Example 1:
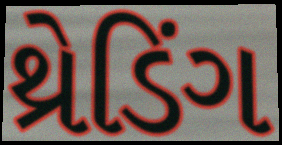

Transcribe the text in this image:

થ્રેડિંગ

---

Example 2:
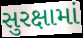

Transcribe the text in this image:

સુરક્ષામાં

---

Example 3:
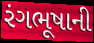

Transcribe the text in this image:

રંગભૂષાની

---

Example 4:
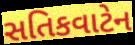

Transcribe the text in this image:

સતિકવાટેન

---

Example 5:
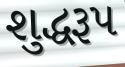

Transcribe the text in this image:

શુદ્ધરૂપ